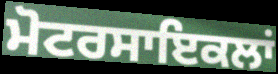
ਮੋਟਰਸਾਇਕਲਾਂ